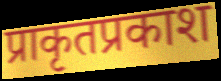
प्राकृतप्रकाश